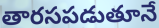
తారసపడుతూనే